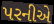
પરનીએ